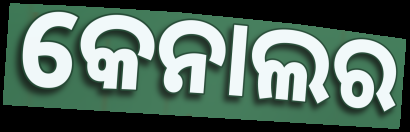
କେନାଲର